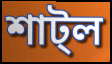
শাট্ল